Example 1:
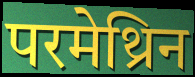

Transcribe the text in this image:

परमेथ्रिन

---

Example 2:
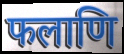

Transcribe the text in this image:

फलाणि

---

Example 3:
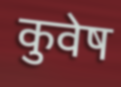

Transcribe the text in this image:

कुवेष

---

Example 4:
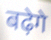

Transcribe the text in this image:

बढ़ेगे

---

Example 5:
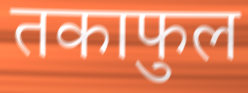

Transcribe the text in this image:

तकाफुल